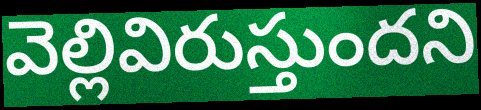
వెల్లివిరుస్తుందని